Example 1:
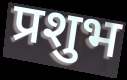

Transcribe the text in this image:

प्रशुभ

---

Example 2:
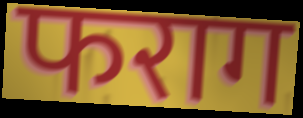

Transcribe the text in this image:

फराग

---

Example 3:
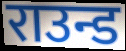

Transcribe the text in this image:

राउन्ड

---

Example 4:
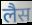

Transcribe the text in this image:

लैस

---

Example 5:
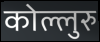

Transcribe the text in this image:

कोल्लुरु